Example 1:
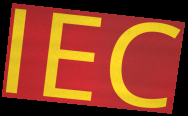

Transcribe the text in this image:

IEC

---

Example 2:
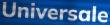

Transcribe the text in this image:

Universale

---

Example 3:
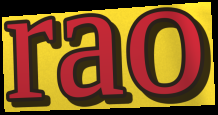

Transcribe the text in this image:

rao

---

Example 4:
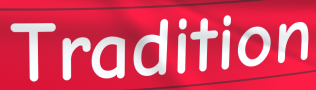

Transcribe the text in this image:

Tradition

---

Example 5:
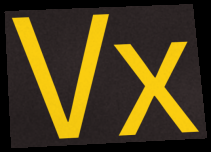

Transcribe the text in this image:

Vx